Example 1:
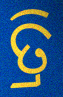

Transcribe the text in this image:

ତ୍ରି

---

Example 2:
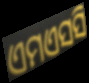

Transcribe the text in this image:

ଏମଏସସି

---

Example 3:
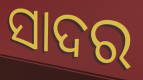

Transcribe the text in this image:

ସାଦର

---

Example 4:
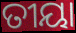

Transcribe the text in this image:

ତୀୟା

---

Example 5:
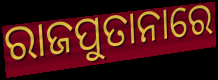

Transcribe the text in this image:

ରାଜପୁତାନାରେ